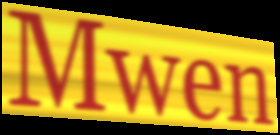
Mwen